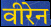
वीरेन